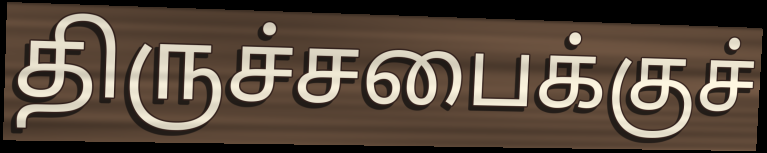
திருச்சபைக்குச்